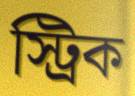
স্ট্রিক